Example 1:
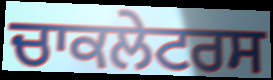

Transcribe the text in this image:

ਚਾਕਲੇਟਰਸ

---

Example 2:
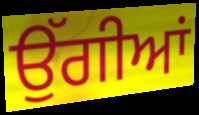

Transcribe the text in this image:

ਉੱਗੀਆਂ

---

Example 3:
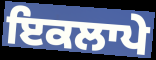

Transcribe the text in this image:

ਇਕਲਾਪੇ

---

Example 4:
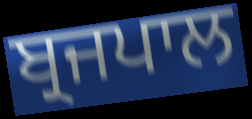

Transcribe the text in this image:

ਬ੍ਰਜਪਾਲ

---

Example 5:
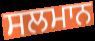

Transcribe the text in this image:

ਸਲਮਾਨ